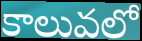
కాలువలో